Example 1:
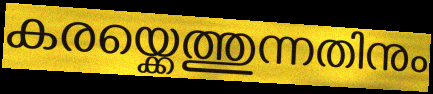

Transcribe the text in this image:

കരയ്ക്കെത്തുന്നതിനും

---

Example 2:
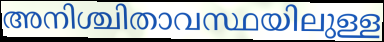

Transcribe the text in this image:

അനിശ്ചിതാവസ്ഥയിലുള്ള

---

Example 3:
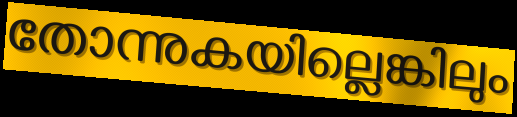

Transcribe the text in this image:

തോന്നുകയില്ലെങ്കിലും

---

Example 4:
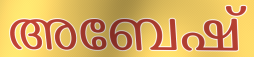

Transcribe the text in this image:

അബേഷ്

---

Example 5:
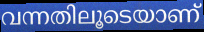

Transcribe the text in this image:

വന്നതിലൂടെയാണ്